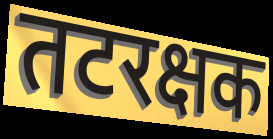
तटरक्षक